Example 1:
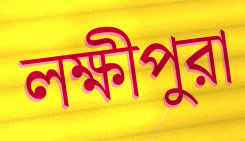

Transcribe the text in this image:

লক্ষীপুরা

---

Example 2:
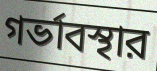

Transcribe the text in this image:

গর্ভাবস্থার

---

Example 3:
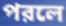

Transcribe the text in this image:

পরলে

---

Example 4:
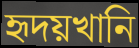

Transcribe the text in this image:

হৃদয়খানি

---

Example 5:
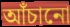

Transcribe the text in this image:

আঁচানো